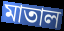
মাতাল